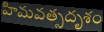
హిమవత్సదృశం